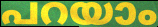
പറയാം